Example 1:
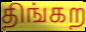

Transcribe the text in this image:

திங்கற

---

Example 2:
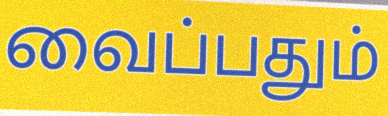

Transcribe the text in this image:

வைப்பதும்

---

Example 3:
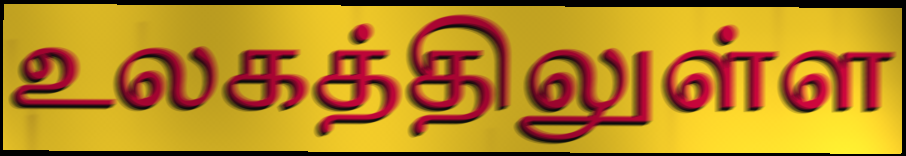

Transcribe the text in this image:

உலகத்திலுள்ள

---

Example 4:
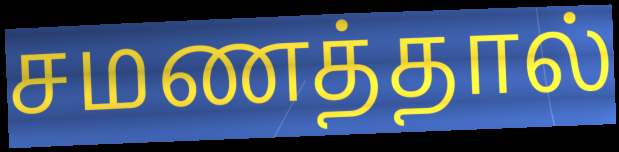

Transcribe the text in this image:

சமணத்தால்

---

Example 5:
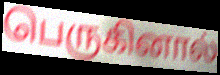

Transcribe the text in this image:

பெருகினால்